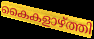
കൈകളാഴ്ത്തി